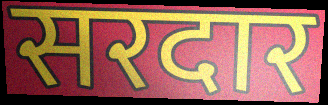
सरदार